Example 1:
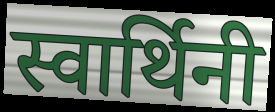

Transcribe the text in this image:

स्वार्थिनी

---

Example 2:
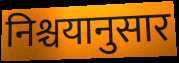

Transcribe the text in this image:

निश्चयानुसार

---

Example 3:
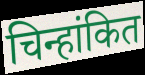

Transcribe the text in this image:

चिन्हांकित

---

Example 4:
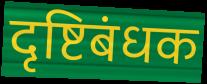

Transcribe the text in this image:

दृष्टिबंधक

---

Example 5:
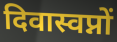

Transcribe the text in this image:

दिवास्वप्नों